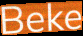
Beke